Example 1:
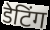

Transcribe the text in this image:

डेटिंग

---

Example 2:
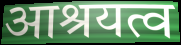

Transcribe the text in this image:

आश्रयत्व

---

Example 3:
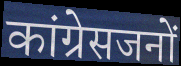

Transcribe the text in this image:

कांग्रेसजनों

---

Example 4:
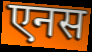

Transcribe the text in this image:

एनस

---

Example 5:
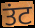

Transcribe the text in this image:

उंट